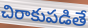
చిరాకుపడితే